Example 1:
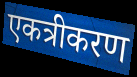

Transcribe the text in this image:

एकत्रीकरण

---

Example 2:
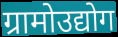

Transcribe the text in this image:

ग्रामोउद्योग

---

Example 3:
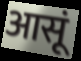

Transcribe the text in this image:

आसूं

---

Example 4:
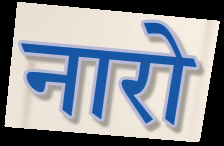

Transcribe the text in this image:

नारो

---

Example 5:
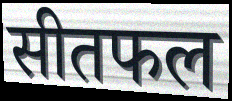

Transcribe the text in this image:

सीतफल